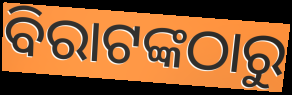
ବିରାଟଙ୍କଠାରୁ